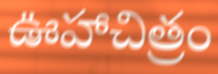
ఊహాచిత్రం